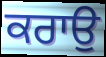
ਕਰਾਉ